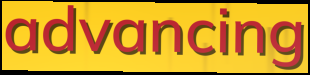
advancing